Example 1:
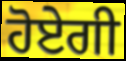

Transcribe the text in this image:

ਹੋਏਗੀ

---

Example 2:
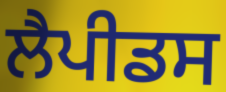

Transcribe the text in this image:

ਲੈਪੀਡਸ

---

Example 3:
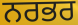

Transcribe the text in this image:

ਨਰਭਰ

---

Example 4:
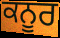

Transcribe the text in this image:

ਕਨੂਰ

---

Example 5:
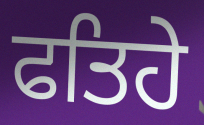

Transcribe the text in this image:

ਫਤਿਹੇ